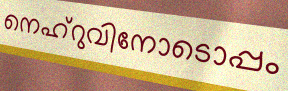
നെഹ്റുവിനോടൊപ്പം